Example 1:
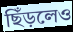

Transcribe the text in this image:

ছিঁড়লেও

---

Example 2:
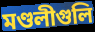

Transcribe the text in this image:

মণ্ডলীগুলি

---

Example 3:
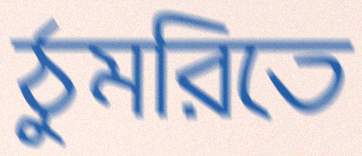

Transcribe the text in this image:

ঠুমরিতে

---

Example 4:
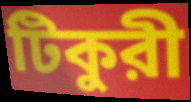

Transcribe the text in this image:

টিকুরী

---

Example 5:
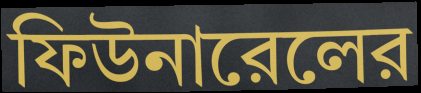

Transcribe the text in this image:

ফিউনারেলের